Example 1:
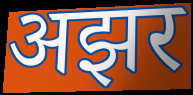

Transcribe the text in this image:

अझर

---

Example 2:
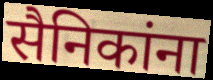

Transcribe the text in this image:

सैनिकांना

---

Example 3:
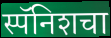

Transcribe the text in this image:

स्पॅनिशचा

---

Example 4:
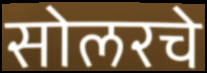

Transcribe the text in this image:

सोलरचे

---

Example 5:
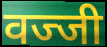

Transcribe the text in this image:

वज्जी